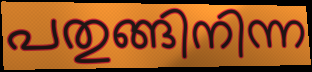
പതുങ്ങിനിന്ന